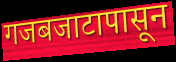
गजबजाटापासून